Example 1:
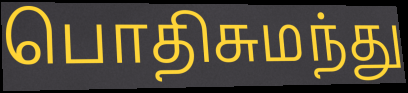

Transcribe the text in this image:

பொதிசுமந்து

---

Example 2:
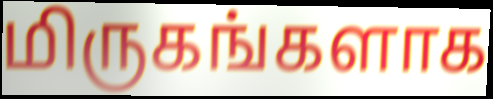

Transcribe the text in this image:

மிருகங்களாக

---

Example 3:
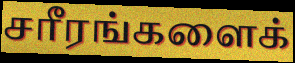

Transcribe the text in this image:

சரீரங்களைக்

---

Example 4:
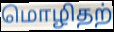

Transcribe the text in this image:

மொழிதற்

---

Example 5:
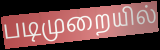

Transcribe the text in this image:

படிமுறையில்